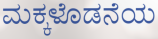
ಮಕ್ಕಳೊಡನೆಯ